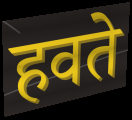
हवते